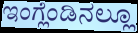
ಇಂಗ್ಲೆಂಡಿನಲ್ಲೂ